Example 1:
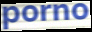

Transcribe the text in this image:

porno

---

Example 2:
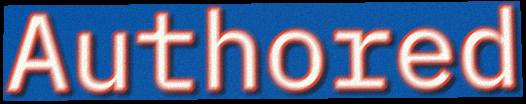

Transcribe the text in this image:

Authored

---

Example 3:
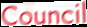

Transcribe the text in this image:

Council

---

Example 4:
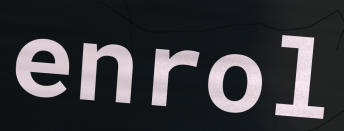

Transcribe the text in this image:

enrol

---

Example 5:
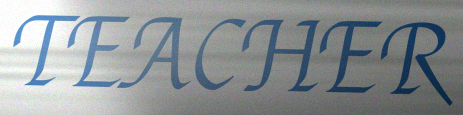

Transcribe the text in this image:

TEACHER